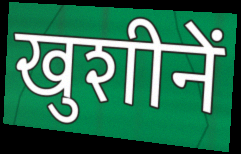
खुशीनें